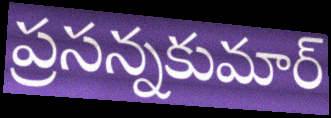
ప్రసన్నకుమార్